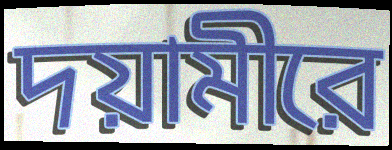
দয়ামীরে